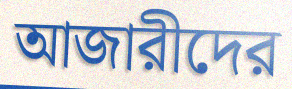
আজারীদের